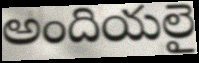
అందియలై